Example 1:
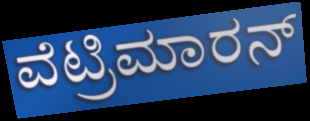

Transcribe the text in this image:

ವೆಟ್ರಿಮಾರನ್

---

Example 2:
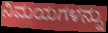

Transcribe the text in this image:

ನಿಮಯಗಳನ್ನು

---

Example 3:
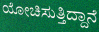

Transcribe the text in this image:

ಯೋಚಿಸುತ್ತಿದ್ದಾನೆ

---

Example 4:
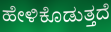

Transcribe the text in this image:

ಹೇಳಿಕೊಡುತ್ತದೆ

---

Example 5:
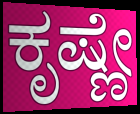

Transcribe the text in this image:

ಕೃಷ್ಣೇ